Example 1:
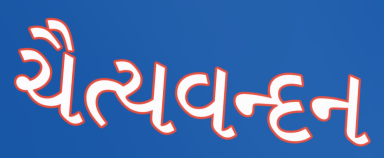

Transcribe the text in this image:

ચૈત્યવન્દન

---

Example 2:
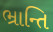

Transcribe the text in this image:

ભ્રાન્તિ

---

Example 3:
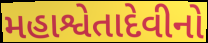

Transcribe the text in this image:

મહાશ્વેતાદેવીનો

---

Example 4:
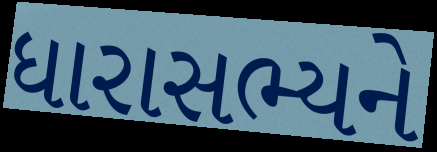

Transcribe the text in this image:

ધારાસભ્યને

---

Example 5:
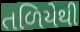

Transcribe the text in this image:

તળિયેથી